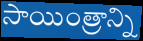
సాయింత్రాన్ని